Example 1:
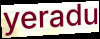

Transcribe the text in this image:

yeradu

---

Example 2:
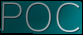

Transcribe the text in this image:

POC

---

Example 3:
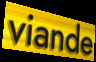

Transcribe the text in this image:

viande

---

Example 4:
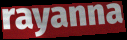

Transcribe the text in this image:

rayanna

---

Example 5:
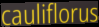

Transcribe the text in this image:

cauliflorus